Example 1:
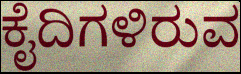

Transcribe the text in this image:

ಕೈದಿಗಳಿರುವ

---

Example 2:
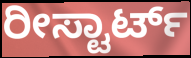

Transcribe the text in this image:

ರೀಸ್ಟಾರ್ಟ್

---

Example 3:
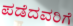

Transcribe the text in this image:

ಪಡೆದವರಿಗೆ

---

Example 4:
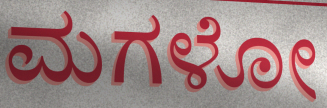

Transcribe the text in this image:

ಮಗಳೋ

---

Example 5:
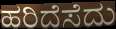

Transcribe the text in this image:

ಹರಿದೆಸೆದು